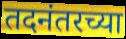
तदनंतरच्या